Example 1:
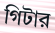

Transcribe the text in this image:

গিটার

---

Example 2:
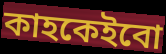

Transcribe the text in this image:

কাহকেইবো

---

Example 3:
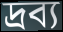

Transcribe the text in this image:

দ্রব্য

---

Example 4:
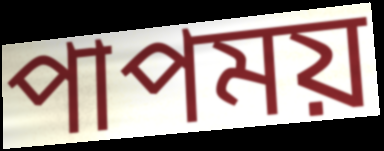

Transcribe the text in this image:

পাপময়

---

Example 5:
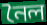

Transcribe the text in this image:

নৈল